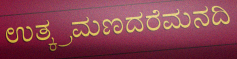
ಉತ್ಕ್ರಮಣದರೆಮನದಿ